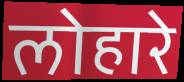
लोहारे